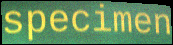
specimen